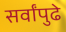
सर्वांपुढे